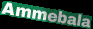
Ammebala